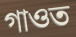
গাওত